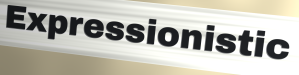
Expressionistic